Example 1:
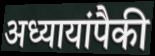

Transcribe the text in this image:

अध्यायांपैकी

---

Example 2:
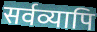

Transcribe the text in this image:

सर्वव्यापि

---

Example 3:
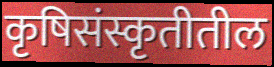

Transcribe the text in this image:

कृषिसंस्कृतीतील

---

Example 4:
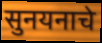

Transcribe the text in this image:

सुनयनाचे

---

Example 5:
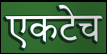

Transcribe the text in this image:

एकटेच